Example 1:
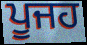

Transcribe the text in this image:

ਪੂਜਹ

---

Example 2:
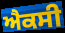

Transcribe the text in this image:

ਐਕਸੀ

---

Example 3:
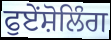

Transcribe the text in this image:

ਫੁਏਂਸ਼ੋਲਿੰਗ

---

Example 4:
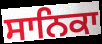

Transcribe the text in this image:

ਸਾਨਿਕਾ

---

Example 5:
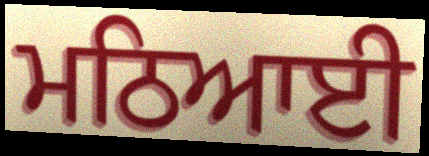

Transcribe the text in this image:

ਮਠਿਆਈ